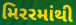
મિરરમાંથી